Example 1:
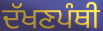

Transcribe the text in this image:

ਦੱਖਣਪੰਥੀ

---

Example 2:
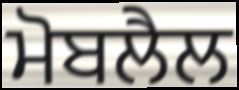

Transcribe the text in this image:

ਮੋਬਲੈਲ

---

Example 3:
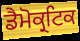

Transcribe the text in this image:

ਡੈਮੋਕ੍ਰਟਿਕ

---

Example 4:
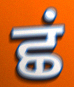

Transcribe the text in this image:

ਛਂ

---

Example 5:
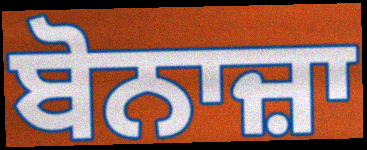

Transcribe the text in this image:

ਬੋਨਾਜ਼ਾ